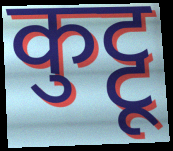
कुट्टू